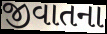
જીવાતના